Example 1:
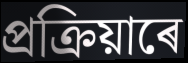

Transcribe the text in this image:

প্ৰক্ৰিয়াৰে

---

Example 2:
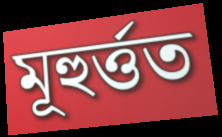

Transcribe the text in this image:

মূহুৰ্ত্তত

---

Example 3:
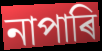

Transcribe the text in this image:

নাপাৰি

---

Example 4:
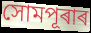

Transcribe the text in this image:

সোমপূৰাৰ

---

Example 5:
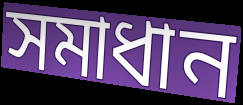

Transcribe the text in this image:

সমাধান